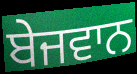
ਬੇਜਵਾਨ